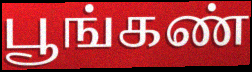
பூங்கண்